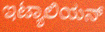
ಇಟ್ಯಾಲಿಯನ್